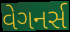
વેગનર્સ